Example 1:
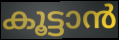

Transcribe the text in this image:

കൂട്ടാൻ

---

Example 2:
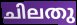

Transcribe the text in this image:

ചിലതു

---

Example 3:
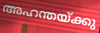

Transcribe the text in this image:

അഹന്തയ്ക്കു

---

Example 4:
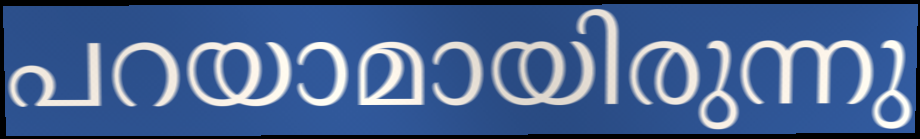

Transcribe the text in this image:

പറയാമായിരുന്നു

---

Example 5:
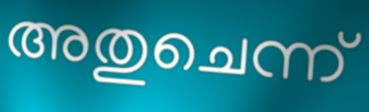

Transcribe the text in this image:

അതുചെന്ന്